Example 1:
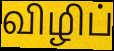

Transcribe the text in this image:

விழிப்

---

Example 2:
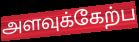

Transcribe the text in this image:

அளவுக்கேற்ப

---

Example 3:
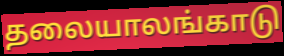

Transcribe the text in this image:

தலையாலங்காடு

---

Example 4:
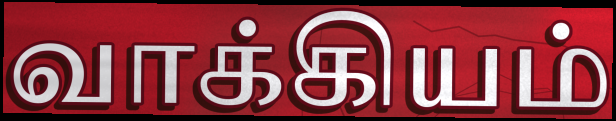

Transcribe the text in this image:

வாக்கியம்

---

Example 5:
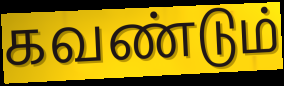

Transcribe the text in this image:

கவண்டும்